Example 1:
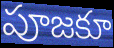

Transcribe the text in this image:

పూజకూ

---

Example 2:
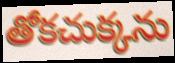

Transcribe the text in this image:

తోకచుక్కను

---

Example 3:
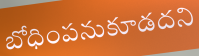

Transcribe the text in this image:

బోధింపనుకూడదని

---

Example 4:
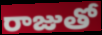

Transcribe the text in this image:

రాజుతో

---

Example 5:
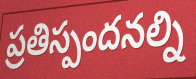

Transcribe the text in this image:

ప్రతిస్పందనల్ని